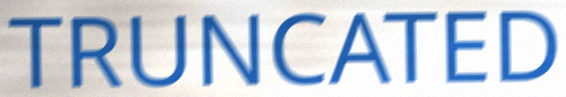
TRUNCATED